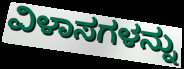
ವಿಳಾಸಗಳನ್ನು